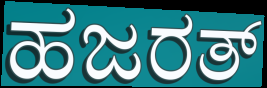
ಹಜರತ್